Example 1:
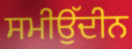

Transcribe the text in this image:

ਸਮੀਉੱਦੀਨ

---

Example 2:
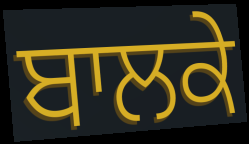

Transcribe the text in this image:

ਬਾਲਕੇ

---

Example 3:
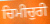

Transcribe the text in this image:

ਚਿਮੀਚੁਰੀ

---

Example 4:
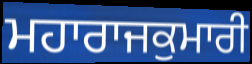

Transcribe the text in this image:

ਮਹਾਰਾਜਕੁਮਾਰੀ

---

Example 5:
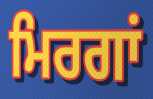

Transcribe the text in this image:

ਮਿਰਗਾਂ